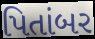
પિતાંબર